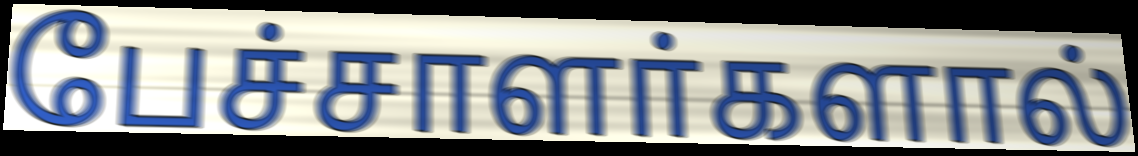
பேச்சாளர்களால்